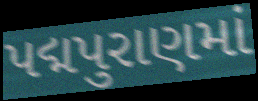
પદ્મપુરાણમાં